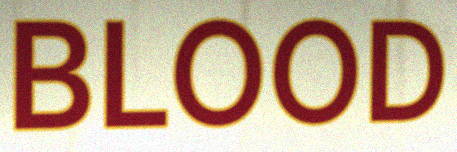
BLOOD